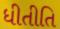
ધીતીતિ